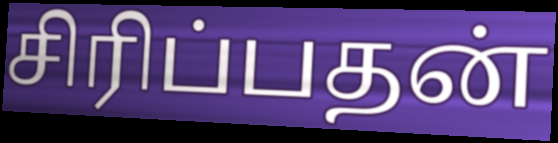
சிரிப்பதன்